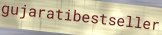
gujaratibestseller